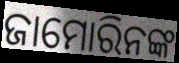
ଜାମୋରିନଙ୍କ